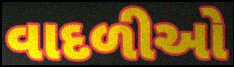
વાદળીઓ